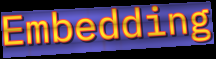
Embedding